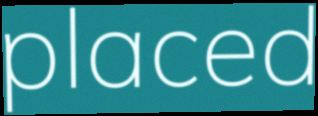
placed